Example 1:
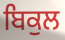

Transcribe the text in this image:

ਬਿਕੁਲ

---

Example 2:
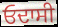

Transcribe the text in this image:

ਓਦਾਸੀ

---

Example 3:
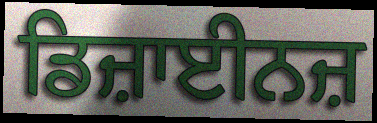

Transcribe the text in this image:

ਡਿਜ਼ਾਈਨਜ਼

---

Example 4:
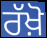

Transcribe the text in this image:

ਰੱਖ਼ੋ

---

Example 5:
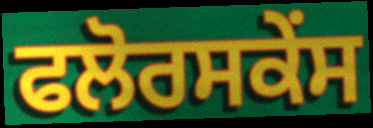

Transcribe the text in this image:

ਫਲੋਰਸਕੇਂਸ